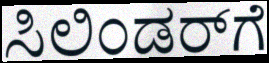
ಸಿಲಿಂಡರ್‌ಗೆ